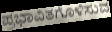
ಪ್ರಭಾವಿತಗೊಳಿಸುವ